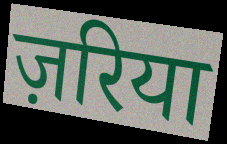
ज़रिया